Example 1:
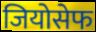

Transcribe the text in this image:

जियोसेफ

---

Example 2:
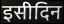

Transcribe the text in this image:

इसीदिन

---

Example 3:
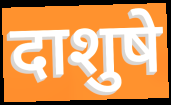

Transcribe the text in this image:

दाशुषे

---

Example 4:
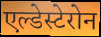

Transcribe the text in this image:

एल्डेस्टेरोन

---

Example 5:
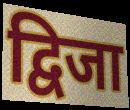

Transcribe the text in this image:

द्विजा